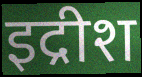
इद्रीश